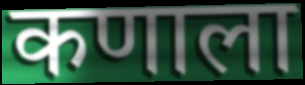
कणाला